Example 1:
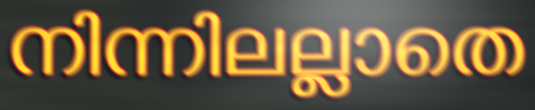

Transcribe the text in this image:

നിന്നിലല്ലാതെ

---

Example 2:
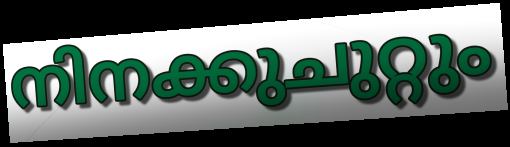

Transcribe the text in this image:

നിനക്കുചുറ്റും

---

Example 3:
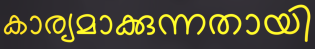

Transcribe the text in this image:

കാര്യമാക്കുന്നതായി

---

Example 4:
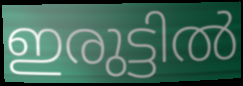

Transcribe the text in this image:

ഇരുട്ടിൽ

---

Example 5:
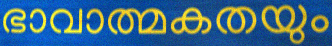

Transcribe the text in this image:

ഭാവാത്മകതയും